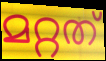
മറ്റത്